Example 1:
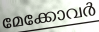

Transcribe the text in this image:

മേക്കോവർ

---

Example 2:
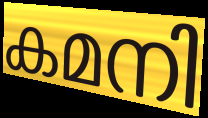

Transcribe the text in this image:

കമനി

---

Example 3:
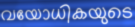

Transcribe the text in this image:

വയോധികയുടെ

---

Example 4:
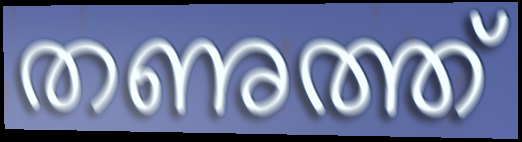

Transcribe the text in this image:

തണുത്ത്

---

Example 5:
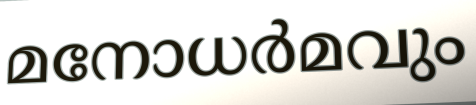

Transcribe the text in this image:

മനോധർമവും